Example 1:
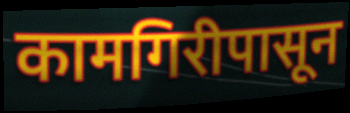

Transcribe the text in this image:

कामगिरीपासून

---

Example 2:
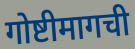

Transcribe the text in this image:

गोष्टीमागची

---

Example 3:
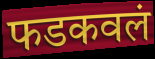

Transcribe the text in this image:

फडकवलं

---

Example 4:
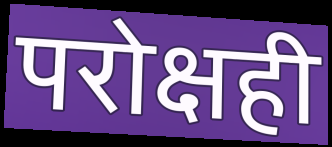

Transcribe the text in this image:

परोक्षही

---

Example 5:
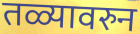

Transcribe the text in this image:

तळ्यावरुन